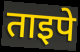
ताइपे